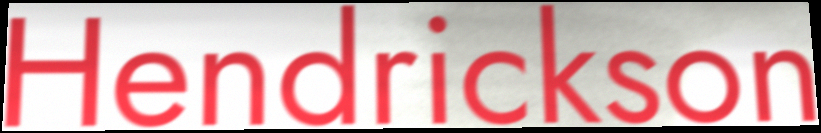
Hendrickson